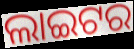
ଲାଇଟର